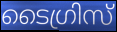
ടൈഗ്രിസ്